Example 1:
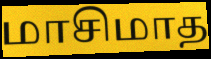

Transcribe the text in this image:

மாசிமாத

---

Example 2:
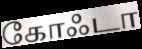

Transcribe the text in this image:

கோஃடா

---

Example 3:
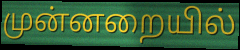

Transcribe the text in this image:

முன்னறையில்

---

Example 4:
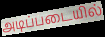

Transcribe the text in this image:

அடிப்படையில்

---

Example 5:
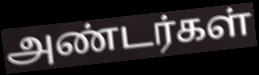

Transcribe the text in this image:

அண்டர்கள்